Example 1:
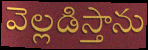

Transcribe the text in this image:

వెల్లడిస్తాను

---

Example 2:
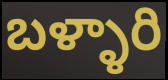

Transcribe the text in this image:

బళ్ళారి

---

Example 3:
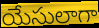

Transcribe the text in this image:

యేసులాగా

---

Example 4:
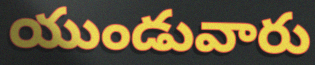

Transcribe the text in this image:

యుండువారు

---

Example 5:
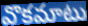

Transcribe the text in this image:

వొకమాటు